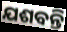
ଯଶବନ୍ତି